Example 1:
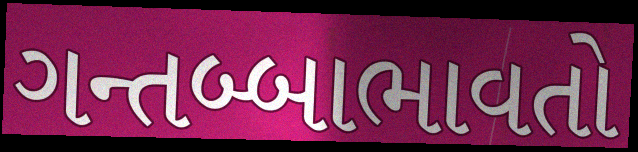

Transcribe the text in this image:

ગન્તબ્બાભાવતો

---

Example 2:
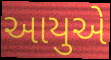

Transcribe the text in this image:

આયુએ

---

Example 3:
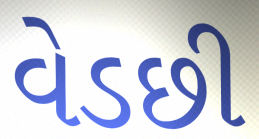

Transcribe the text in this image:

વેડછી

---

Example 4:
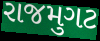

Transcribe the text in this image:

રાજમુગટ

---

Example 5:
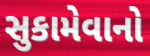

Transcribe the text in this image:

સુકામેવાનો